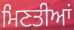
ਮਿਣਤੀਆਂ